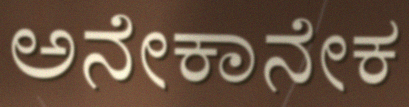
ಅನೇಕಾನೇಕ